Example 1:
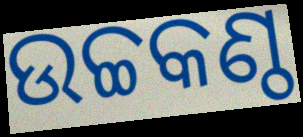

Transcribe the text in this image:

ଉଚ୍ଚକଣ୍ଠ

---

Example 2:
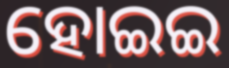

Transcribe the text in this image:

ହୋଇଇ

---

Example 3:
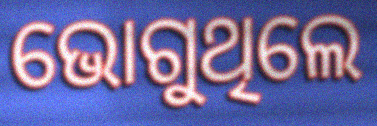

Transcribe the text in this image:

ଭୋଗୁଥିଲେ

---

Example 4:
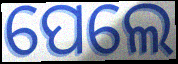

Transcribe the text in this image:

ପେଲେ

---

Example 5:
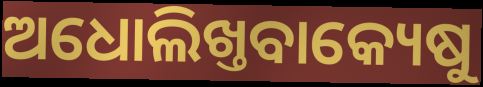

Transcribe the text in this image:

ଅଧୋଲିଖ୍ତବାକ୍ୟେଷୁ